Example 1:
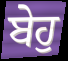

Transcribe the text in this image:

ਬੇਹੁ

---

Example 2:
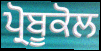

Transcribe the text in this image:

ਪ੍ਰੋਬੂਕੋਲ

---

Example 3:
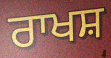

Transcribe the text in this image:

ਰਾਖਸ਼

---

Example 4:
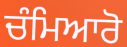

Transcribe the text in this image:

ਚੰਮਿਆਰੋ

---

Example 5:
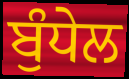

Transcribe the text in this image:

ਬੁੰਧੇਲ